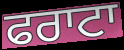
ਫਰਾਟਾ